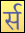
र्स